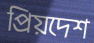
প্রিয়দেশ